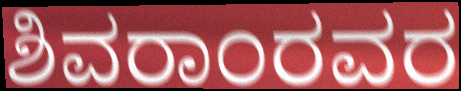
ಶಿವರಾಂರವರ